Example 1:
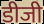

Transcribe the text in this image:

डीजी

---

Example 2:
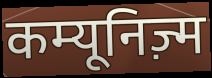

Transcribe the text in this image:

कम्यूनिज़्म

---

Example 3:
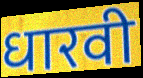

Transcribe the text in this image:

धारवी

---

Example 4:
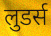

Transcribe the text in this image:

लुडर्स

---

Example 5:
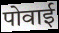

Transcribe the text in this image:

पोवाई